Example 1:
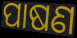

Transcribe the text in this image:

ପାଷଣ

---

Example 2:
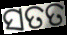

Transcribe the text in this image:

ସତତ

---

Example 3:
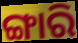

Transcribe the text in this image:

ଙ୍ଗାରି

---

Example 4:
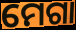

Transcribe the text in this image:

ମେଗା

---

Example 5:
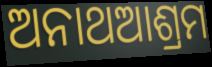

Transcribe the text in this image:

ଅନାଥଆଶ୍ରମ